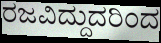
ರಜವಿದ್ದುದರಿಂದ